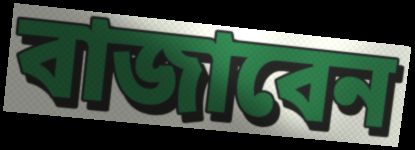
বাজাবেন